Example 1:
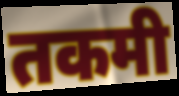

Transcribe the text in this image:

तकमी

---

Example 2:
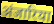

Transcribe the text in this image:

अंजारिया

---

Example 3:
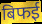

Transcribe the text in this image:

बिफई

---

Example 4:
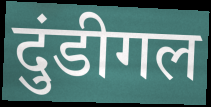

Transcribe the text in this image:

दुंडीगल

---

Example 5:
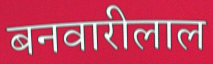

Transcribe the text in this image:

बनवारीलाल